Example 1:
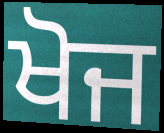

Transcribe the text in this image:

ਖੋਜ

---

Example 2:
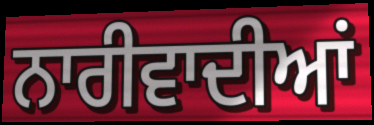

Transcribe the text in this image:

ਨਾਰੀਵਾਦੀਆਂ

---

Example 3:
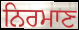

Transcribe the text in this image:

ਨਿਰਮਾਣ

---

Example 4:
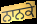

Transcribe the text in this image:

ਨਾਨਕੇ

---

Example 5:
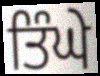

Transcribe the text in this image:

ਤਿੰਘੇ